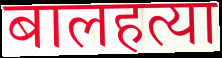
बालहत्या